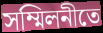
সম্মিলনীতে